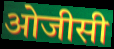
ओजीसी